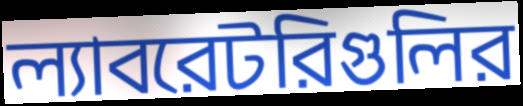
ল্যাবরেটরিগুলির